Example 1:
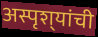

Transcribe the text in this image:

अस्पृश्यांची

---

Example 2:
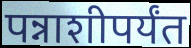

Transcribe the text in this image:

पन्नाशीपर्यंत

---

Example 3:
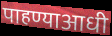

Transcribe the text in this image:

पाहण्याआधी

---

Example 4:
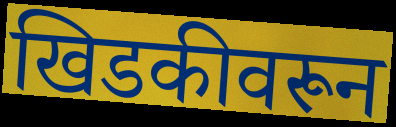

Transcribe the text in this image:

खिडकीवरून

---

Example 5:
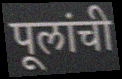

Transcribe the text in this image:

पूलांची